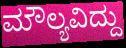
ಮೌಲ್ಯವಿದ್ದು